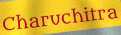
Charuchitra